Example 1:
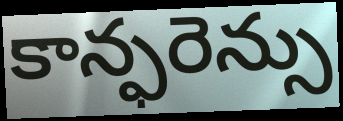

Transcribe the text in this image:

కాన్ఫరెన్సు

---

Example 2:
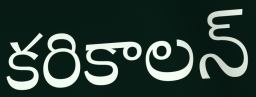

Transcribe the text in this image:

కరికాలన్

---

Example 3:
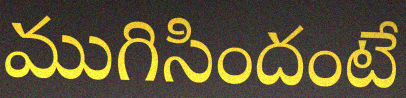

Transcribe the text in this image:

ముగిసిందంటే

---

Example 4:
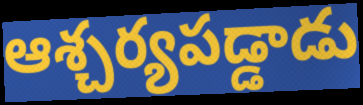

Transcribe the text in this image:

ఆశ్చర్యపడ్డాడు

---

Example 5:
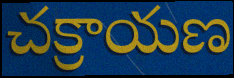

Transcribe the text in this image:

చక్రాయణ